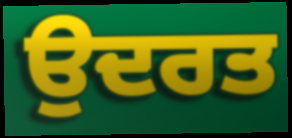
ਉਦਰਤ